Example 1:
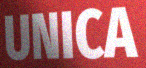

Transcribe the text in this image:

UNICA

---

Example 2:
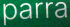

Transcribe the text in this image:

parra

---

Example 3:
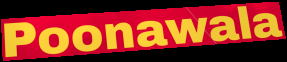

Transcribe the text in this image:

Poonawala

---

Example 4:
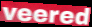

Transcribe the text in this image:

veered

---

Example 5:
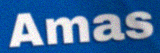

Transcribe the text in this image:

Amas